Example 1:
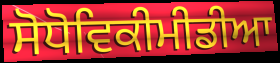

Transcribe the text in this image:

ਸੋਧੋਵਿਕੀਮੀਡੀਆ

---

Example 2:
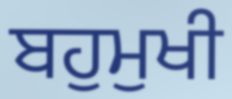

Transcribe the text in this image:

ਬਹੁਮੁਖੀ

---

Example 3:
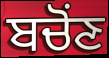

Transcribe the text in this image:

ਬਚੋਂਣ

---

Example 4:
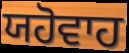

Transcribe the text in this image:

ਯਹੋਵਾਹ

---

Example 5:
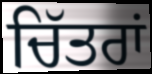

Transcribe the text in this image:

ਚਿੱਤਰਾਂ